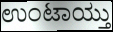
ಉಂಟಾಯ್ತು